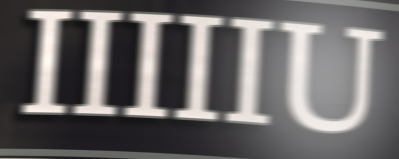
IIIIIU